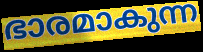
ഭാരമാകുന്ന